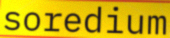
soredium